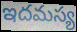
ఇదమస్య